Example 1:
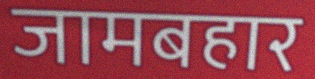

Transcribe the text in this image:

जामबहार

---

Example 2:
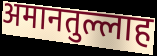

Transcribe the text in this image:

अमानतुल्लाह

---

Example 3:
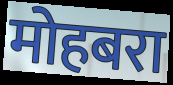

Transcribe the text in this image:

मोहबरा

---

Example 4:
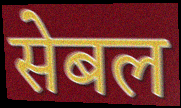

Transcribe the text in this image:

सेबल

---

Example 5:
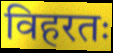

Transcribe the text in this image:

विहरतः